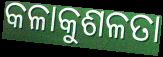
କଳାକୁଶଳତା